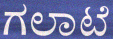
ಗಲಾಟೆ